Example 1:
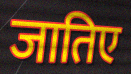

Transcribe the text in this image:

जातिए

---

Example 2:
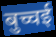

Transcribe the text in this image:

बुच्चई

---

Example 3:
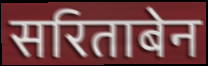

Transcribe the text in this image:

सरिताबेन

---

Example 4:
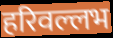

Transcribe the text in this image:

हरिवल्लभ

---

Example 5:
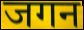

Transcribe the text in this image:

जगन